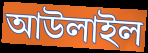
আউলাইল